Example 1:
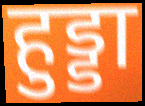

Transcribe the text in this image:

हुड्डा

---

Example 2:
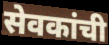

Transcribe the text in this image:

सेवकांची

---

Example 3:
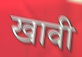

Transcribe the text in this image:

खावी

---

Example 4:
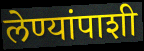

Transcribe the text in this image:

लेण्यांपाशी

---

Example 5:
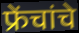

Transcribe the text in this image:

फ्रेंचांचे